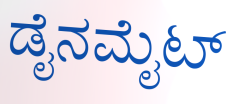
ಡೈನಮೈಟ್